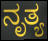
ನೃತ್ಯ